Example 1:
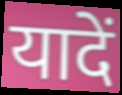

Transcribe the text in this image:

यादें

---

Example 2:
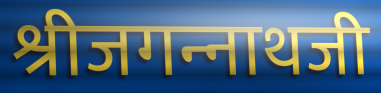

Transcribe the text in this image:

श्रीजगन्नाथजी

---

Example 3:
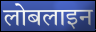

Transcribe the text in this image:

लोबलाइन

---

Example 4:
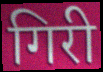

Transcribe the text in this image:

गिरी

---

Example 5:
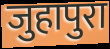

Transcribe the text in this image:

जुहापुरा